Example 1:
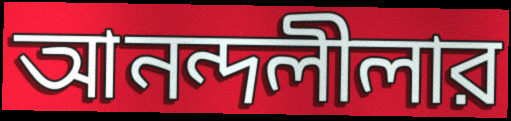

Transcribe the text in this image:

আনন্দলীলার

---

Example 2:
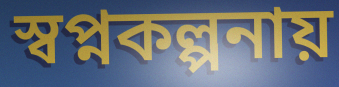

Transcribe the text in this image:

স্বপ্নকল্পনায়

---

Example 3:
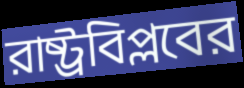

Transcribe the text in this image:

রাষ্ট্রবিপ্লবের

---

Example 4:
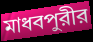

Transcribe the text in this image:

মাধবপুরীর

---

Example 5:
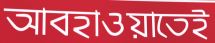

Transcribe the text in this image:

আবহাওয়াতেই